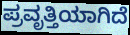
ಪ್ರವೃತ್ತಿಯಾಗಿದೆ